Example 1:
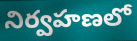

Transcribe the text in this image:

నిర్వహణలో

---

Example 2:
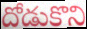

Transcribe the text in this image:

దోడుకొని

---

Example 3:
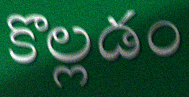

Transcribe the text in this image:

కొల్లడం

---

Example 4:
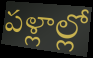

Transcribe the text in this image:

పళ్లాల్లో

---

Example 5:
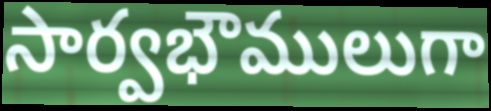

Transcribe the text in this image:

సార్వభౌములుగా